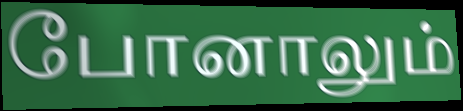
போனாலும்